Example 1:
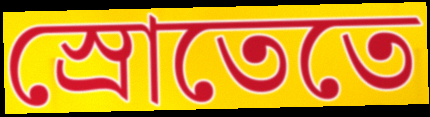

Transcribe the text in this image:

স্রোতেতে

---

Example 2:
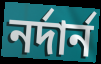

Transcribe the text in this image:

নর্দার্ন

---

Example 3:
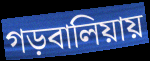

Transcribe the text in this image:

গড়বালিয়ায়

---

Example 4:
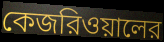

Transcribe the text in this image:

কেজরিওয়ালের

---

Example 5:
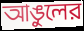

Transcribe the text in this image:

আঙুলের